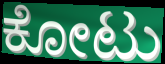
ಕೋಟು